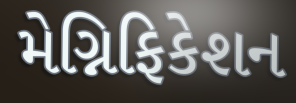
મેગ્નિફિકેશન